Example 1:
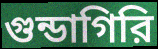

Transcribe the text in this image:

গুন্ডাগিরি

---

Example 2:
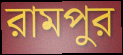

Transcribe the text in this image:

রামপুর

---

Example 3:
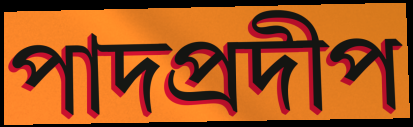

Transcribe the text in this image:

পাদপ্রদীপ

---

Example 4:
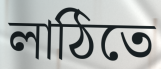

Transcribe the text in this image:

লাঠিতে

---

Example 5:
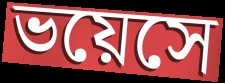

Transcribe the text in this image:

ভয়েসে